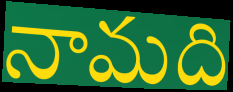
నామది